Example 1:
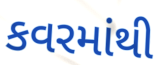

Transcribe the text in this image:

કવરમાંથી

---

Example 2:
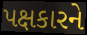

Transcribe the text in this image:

પક્ષકારને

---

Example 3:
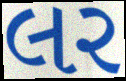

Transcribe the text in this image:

લર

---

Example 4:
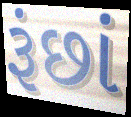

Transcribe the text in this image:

રૂંછાં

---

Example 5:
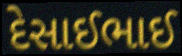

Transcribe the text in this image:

દેસાઈભાઈ